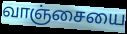
வாஞ்சையை